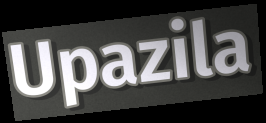
Upazila